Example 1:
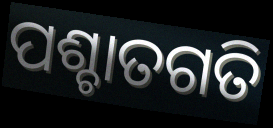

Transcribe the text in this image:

ପଶ୍ଚାତଗତି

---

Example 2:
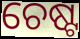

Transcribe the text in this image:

ଚେଷ୍ଟ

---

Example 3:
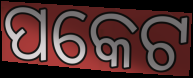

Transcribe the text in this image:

ପକେଟ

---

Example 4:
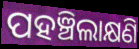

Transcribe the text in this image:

ପହଞ୍ଚିଲାକ୍ଷଣି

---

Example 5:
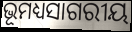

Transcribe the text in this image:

ଭୂମଧ୍ୟସାଗରୀୟ